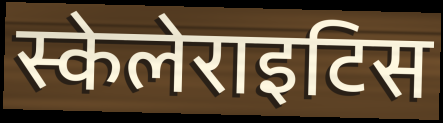
स्केलेराइटिस